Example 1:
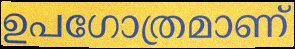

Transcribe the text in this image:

ഉപഗോത്രമാണ്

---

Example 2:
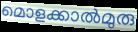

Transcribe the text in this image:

മൊളക്കാൽമുരു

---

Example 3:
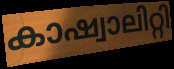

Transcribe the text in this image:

കാഷ്വാലിറ്റി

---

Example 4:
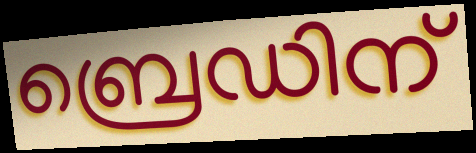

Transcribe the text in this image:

ബ്രെഡിന്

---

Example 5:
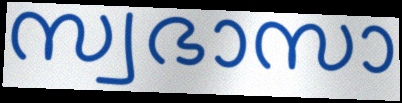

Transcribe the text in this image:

സ്വഭാസാ